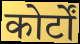
कोर्टों